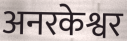
अनरकेश्वर